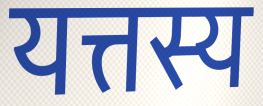
यत्तस्य